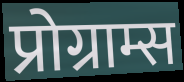
प्रोग्राम्स